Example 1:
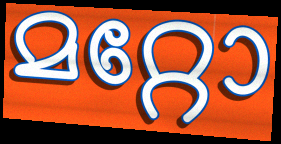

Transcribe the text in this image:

മറ്റോ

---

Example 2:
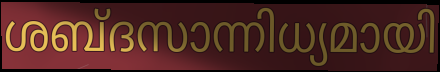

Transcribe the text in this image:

ശബ്ദസാന്നിധ്യമായി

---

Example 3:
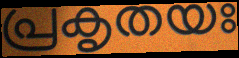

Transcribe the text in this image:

പ്രകൃതയഃ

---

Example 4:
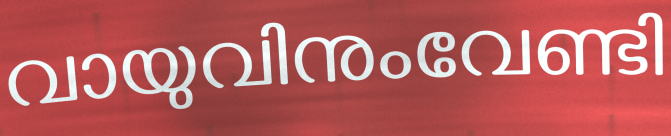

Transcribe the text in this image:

വായുവിനുംവേണ്ടി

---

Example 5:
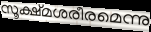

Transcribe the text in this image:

സൂക്ഷ്മശരീരമെന്നു